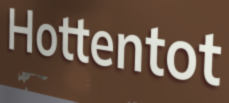
Hottentot